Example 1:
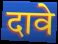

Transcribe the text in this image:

दावे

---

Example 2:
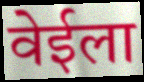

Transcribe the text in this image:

वेईला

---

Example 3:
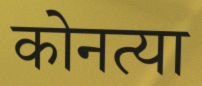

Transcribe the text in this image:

कोनत्या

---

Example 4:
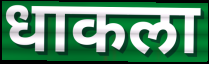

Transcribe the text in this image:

धाकला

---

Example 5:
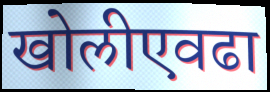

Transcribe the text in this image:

खोलीएवढा